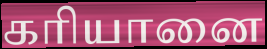
கரியானை